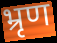
भ्रृण